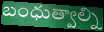
బంధుత్వాల్ని